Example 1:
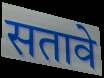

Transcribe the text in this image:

सतावे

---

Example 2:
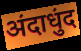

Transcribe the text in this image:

अंदाधुंद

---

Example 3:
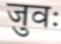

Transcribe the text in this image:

जुवः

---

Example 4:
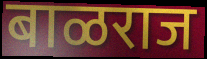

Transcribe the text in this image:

बाळराज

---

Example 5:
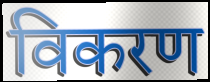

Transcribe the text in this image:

विकरण